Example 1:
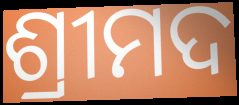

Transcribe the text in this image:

ଶ୍ରୀମଦ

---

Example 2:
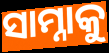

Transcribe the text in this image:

ସାମ୍ନାକୁ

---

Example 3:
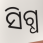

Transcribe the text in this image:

ସିଗ୍ଧ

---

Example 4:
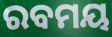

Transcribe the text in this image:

ରବମୟ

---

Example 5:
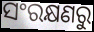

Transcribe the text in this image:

ସଂରକ୍ଷଣରୁ